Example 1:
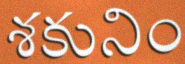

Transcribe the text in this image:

శకునిం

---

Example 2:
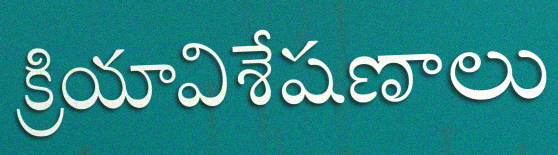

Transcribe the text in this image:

క్రియావిశేషణాలు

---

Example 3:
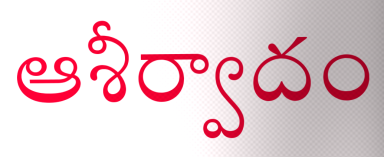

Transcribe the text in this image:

ఆశీర్వాదం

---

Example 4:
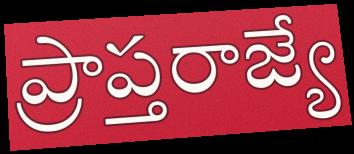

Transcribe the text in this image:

ప్రాప్తరాజ్యే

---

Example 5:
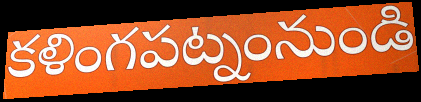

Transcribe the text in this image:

కళింగపట్నంనుండి